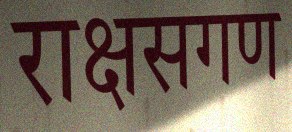
राक्षसगण